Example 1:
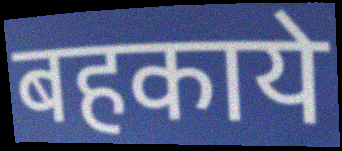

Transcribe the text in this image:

बहकाये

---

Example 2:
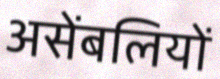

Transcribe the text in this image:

असेंबलियों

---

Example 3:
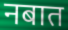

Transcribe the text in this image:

नबात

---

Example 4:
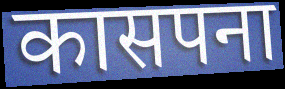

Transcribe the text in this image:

कासपना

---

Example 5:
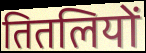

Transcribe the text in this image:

तितलियों